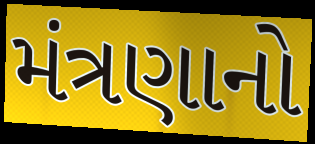
મંત્રણાનો